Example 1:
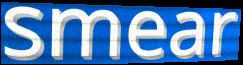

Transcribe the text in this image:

smear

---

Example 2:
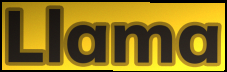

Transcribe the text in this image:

Llama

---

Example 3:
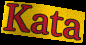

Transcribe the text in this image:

Kata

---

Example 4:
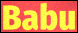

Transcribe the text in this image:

Babu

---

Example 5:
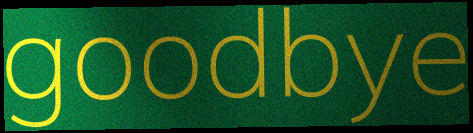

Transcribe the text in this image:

goodbye